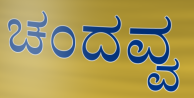
ಚಂದವ್ವ